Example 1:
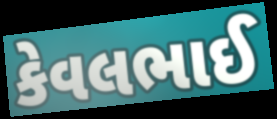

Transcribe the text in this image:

કેવલભાઈ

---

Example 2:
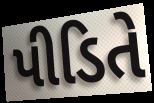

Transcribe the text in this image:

પીડિતે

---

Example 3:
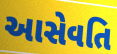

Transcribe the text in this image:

આસેવતિ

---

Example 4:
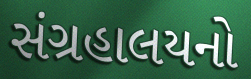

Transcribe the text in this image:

સંગ્રહાલયનો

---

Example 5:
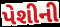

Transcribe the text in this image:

પેશીની